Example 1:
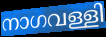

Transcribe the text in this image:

നാഗവള്ളി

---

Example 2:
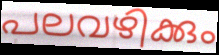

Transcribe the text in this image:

പലവഴിക്കും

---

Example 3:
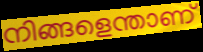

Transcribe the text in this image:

നിങ്ങളെന്താണ്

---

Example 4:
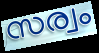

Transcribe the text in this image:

സര്വം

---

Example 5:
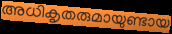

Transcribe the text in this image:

അധികൃതരുമായുണ്ടായ